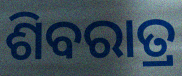
ଶିବରାତ୍ର